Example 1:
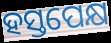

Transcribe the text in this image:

ହସ୍ତପେକ୍ଷ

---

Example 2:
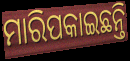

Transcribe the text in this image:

ମାରିପକାଇଛନ୍ତି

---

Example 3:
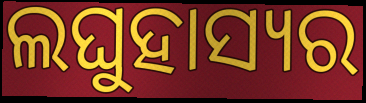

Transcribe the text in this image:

ଲଘୁହାସ୍ୟର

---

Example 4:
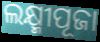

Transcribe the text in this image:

ଲକ୍ଷ୍ମୀପୂଜା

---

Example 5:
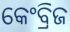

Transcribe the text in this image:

କେଂବ୍ରିଜ